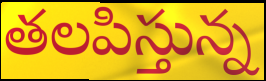
తలపిస్తున్న